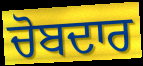
ਚੋਬਦਾਰ